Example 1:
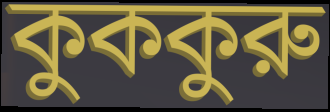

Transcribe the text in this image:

কুককুরু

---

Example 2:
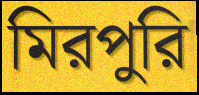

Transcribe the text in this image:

মিরপুরি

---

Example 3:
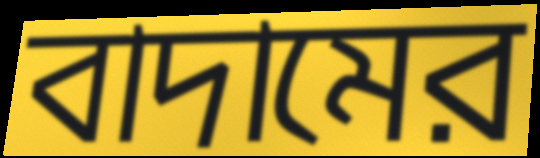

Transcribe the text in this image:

বাদামের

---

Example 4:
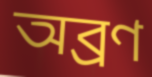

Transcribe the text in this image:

অব্রণ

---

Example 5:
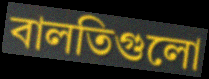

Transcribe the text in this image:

বালতিগুলো